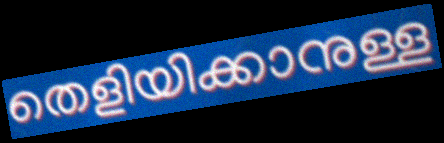
തെളിയിക്കാനുള്ള